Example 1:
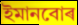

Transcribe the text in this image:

ইমানবোৰ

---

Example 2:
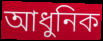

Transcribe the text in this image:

আধুনিক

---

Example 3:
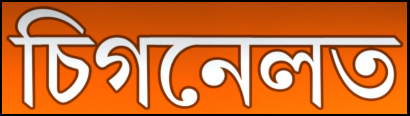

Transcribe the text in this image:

চিগনেলত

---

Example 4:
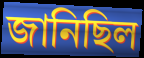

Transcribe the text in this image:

জানিছিল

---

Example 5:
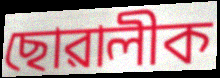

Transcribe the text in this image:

ছোৱালীক